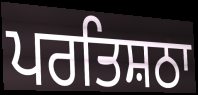
ਪਰਤਿਸ਼ਠਾ